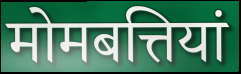
मोमबत्तियां